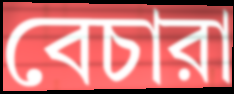
বেচারা